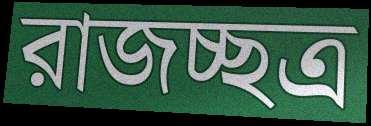
রাজচ্ছত্র